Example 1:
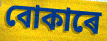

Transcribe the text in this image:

বোকাৰে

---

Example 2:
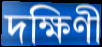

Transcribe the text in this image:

দক্ষিণী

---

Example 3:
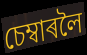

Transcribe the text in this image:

চেম্বাৰলৈ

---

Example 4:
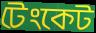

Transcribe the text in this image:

টেংকেট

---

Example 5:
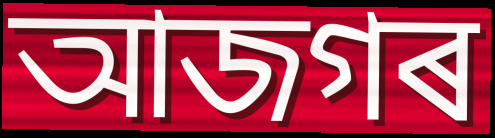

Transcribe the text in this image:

আজগৰ